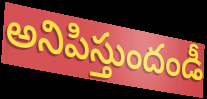
అనిపిస్తుందండీ